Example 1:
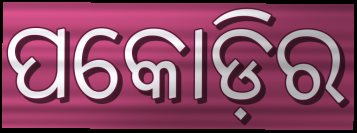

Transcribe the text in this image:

ପକୋଡ଼ିର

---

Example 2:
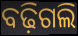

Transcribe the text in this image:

ବଢ଼ିଗଲି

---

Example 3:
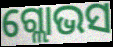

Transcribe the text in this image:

ଗ୍ଲୋଭସ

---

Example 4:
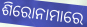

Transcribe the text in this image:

ଶିରୋନାମାରେ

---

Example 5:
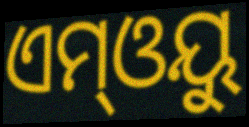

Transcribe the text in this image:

ଏମ୍ଓୟୁ